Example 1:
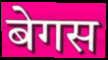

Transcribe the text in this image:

बेगस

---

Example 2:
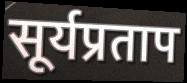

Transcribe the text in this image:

सूर्यप्रताप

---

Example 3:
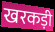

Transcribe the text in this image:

खरकड़ी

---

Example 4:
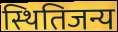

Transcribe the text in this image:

स्थितिजन्य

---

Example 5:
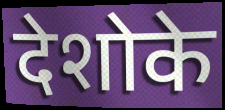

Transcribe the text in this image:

देशोके